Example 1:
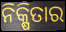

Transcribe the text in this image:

ନିକ୍ଷିତାର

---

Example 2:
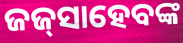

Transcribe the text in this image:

ଜଜ୍‌ସାହେବଙ୍କ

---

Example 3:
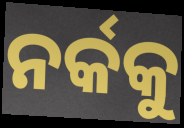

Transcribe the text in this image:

ନର୍କକୁ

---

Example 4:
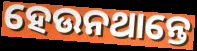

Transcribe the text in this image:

ହେଉନଥାନ୍ତେ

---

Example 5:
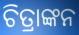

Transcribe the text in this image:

ଚିତ୍ରାଙ୍କନ